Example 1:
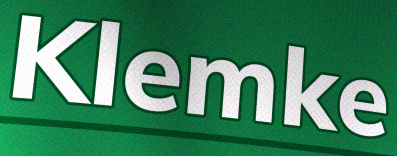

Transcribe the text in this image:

Klemke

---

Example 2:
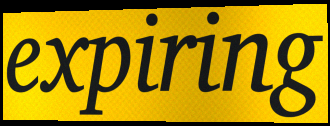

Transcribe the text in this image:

expiring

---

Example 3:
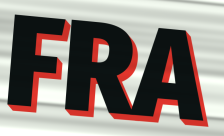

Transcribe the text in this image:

FRA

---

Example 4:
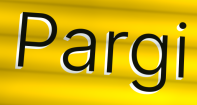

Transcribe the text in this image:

Pargi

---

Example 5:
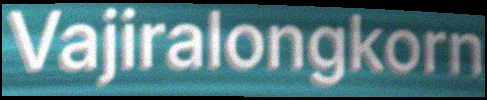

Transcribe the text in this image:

Vajiralongkorn